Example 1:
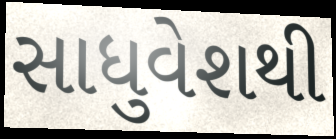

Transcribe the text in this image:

સાધુવેશથી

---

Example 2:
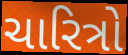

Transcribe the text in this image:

ચારિત્રો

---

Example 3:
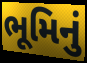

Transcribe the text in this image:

ભૂમિનું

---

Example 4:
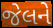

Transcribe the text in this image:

જેલને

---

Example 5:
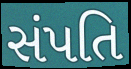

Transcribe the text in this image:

સંપતિ